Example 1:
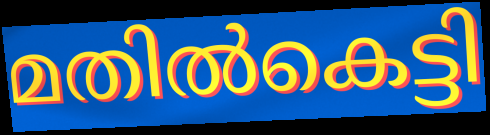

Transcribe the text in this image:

മതിൽകെട്ടി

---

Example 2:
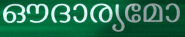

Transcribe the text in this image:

ഔദാര്യമോ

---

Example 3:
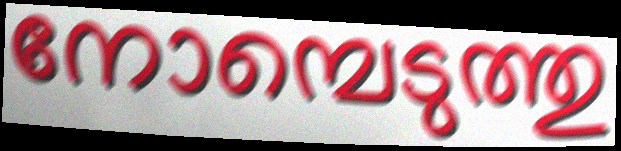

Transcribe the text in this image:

നോമ്പെടുത്തു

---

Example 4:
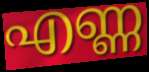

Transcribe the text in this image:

എണ്ണ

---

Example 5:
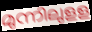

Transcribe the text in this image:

മുന്നിലുളള